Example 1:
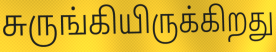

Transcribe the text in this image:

சுருங்கியிருக்கிறது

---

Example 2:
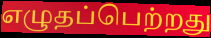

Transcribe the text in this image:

எழுதப்பெற்றது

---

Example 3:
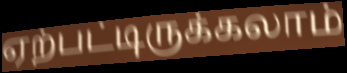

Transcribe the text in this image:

ஏற்பட்டிருக்கலாம்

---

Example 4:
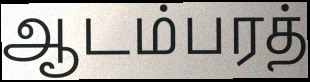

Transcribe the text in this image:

ஆடம்பரத்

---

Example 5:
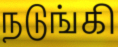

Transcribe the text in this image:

நடுங்கி